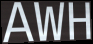
AWH